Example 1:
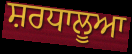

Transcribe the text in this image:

ਸ਼ਰਧਾਲੂਆ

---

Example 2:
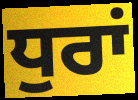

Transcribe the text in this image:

ਧੁਰਾਂ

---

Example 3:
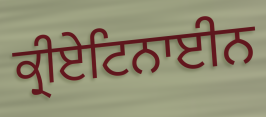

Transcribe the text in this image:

ਕ੍ਰੀਏਟਿਨਾਈਨ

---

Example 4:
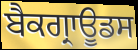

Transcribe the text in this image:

ਬੈਕਗ੍ਰਾਊਡਸ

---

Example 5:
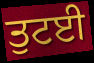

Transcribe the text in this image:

ਤੁਟਈ